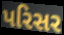
પરિસર